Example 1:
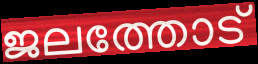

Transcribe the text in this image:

ജലത്തോട്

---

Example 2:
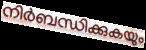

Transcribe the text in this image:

നിർബന്ധിക്കുകയും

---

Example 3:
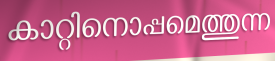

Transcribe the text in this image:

കാറ്റിനൊപ്പമെത്തുന്ന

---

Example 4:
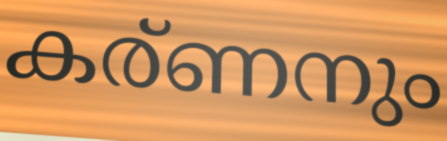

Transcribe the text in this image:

കര്ണനും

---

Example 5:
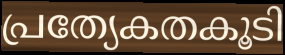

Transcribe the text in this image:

പ്രത്യേകതകൂടി